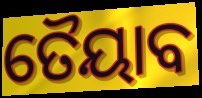
ତୈୟାବ